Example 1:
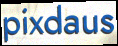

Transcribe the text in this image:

pixdaus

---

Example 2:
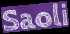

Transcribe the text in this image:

Saoli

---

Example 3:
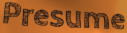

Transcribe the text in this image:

Presume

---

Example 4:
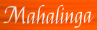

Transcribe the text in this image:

Mahalinga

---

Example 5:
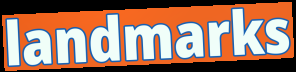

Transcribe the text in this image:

landmarks